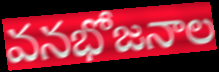
వనభోజనాల